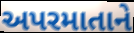
અપરમાતાને